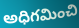
అధిగమించి